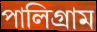
পালিগ্রাম